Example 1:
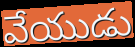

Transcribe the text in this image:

వేయుడు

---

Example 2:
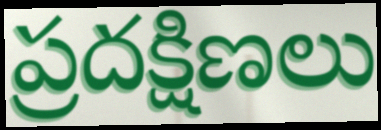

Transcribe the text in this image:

ప్రదక్షిణలు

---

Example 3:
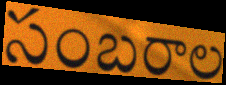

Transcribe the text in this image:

సంబరాల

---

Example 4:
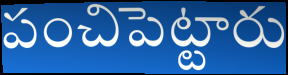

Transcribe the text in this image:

పంచిపెట్టారు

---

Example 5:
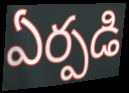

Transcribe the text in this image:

ఏర్పడి